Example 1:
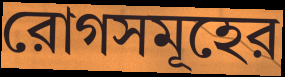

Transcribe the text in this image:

রোগসমূহের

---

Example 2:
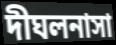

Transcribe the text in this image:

দীঘলনাসা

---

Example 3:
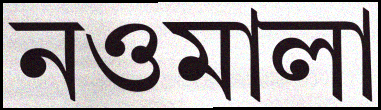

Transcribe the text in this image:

নওমালা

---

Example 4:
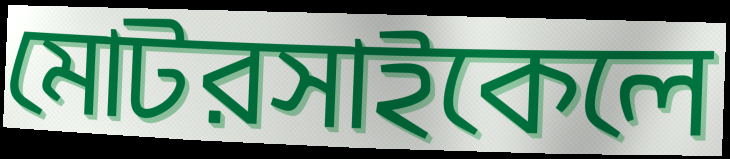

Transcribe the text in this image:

মোটরসাইকেলে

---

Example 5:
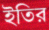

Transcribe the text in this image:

ইতির